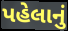
પહેલાનું